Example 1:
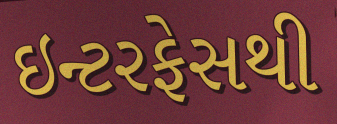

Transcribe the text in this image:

ઇન્ટરફેસથી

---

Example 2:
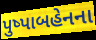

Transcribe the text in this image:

પુષ્પાબહેનના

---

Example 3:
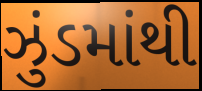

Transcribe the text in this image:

ઝુંડમાંથી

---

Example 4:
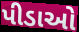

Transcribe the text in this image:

પીડાઓ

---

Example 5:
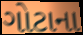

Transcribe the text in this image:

ગોટાના